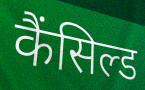
कैंसिल्ड